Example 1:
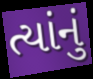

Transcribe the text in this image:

ત્યાંનું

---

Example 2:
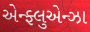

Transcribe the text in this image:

એન્ફ્લુએન્ઝા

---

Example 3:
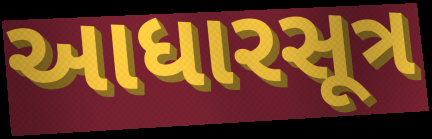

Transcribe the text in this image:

આધારસૂત્ર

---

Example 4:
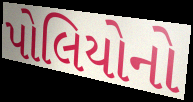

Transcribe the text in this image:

પોલિયોનો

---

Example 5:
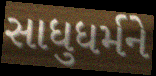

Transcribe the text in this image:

સાધુધર્મને